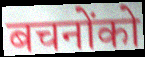
बचनोंको